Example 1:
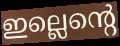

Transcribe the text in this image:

ഇല്ലെന്റെ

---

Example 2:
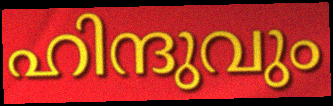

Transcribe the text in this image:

ഹിന്ദുവും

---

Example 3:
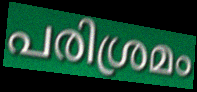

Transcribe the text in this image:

പരിശ്രമം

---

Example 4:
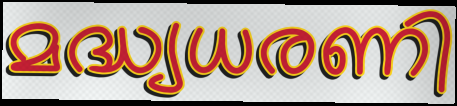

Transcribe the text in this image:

മദ്ധ്യധരണി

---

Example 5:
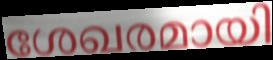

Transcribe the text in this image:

ശേഖരമായി